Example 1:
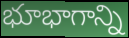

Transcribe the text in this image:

భూభాగాన్ని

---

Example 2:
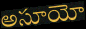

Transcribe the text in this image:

అసూయో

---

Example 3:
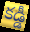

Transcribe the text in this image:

కడ్డీ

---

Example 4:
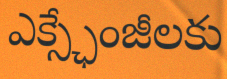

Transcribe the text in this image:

ఎక్స్ఛేంజీలకు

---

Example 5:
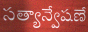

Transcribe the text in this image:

సత్యాన్వేషణే